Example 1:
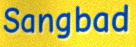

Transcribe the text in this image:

Sangbad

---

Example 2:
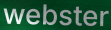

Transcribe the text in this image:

webster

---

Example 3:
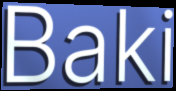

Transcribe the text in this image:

Baki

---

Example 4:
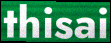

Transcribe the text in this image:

thisai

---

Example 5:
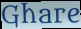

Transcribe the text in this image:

Ghare